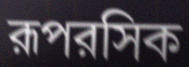
রূপরসিক